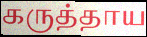
கருத்தாய